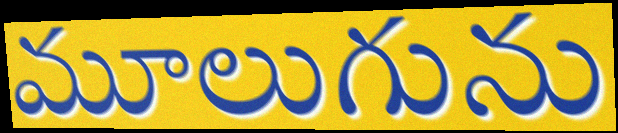
మూలుగును